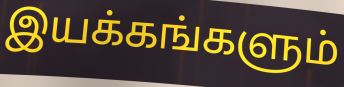
இயக்கங்களும்